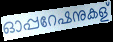
ഓപ്പറേഷനുകള്